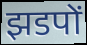
झडपों